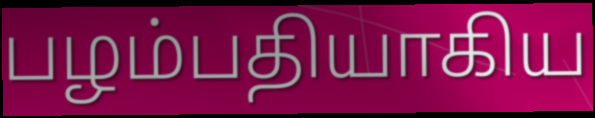
பழம்பதியாகிய